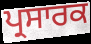
ਪ੍ਰਸਾਰਕ